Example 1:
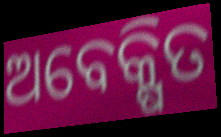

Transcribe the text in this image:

ଅବେକ୍ଷିତ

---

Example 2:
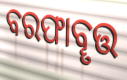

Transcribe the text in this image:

ବରଫାବୄତ୍ତ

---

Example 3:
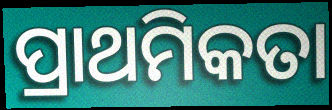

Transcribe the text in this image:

ପ୍ରାଥମିକତା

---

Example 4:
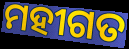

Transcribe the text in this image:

ମହୀଗତ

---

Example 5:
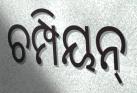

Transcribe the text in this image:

ଚମ୍ପିୟନ୍